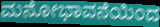
ಮನೋಭಾವನೆಯಿಂದ